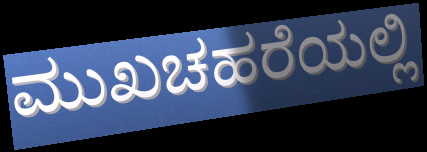
ಮುಖಚಹರೆಯಲ್ಲಿ